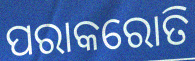
ପରାକରୋତି